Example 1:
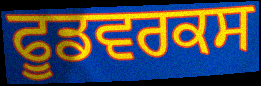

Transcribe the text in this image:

ਫੂਡਵਰਕਸ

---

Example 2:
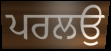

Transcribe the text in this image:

ਪਰਲਉ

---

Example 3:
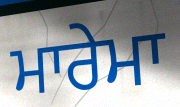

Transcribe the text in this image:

ਮਾਰੇਮਾ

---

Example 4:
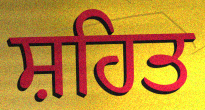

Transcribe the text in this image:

ਸ਼ਹਿਤ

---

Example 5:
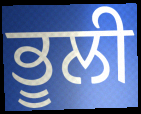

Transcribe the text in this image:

ਭੂਲੀ